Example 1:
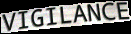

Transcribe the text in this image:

VIGILANCE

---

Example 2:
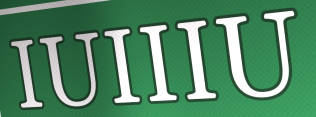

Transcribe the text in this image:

IUIIIU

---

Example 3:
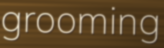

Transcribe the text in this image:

grooming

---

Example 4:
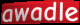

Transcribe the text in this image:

awadle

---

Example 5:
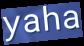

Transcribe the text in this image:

yaha